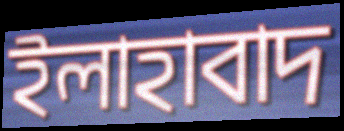
ইলাহাবাদ